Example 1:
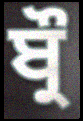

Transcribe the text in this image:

ਬ੍ਰੌ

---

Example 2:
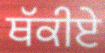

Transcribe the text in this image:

ਥੱਕੀਏ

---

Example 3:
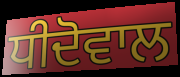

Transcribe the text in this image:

ਧੀਦੋਵਾਲ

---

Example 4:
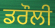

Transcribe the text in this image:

ਡਰੌਲੀ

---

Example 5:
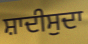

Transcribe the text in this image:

ਸ਼ਾਦੀਸੁਦਾ